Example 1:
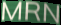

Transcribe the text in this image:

MRN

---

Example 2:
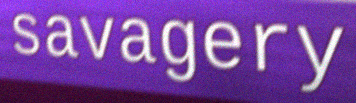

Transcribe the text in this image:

savagery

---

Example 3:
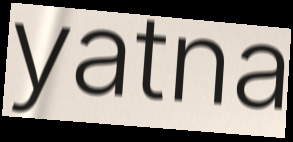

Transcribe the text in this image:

yatna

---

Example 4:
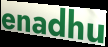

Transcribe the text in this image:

enadhu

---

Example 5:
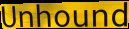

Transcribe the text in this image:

Unhound